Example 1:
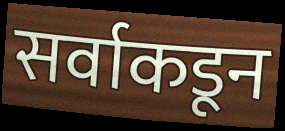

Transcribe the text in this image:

सर्वाकडून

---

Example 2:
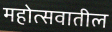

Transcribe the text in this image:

महोत्सवातील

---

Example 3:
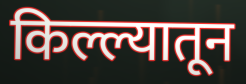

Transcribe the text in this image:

किल्ल्यातून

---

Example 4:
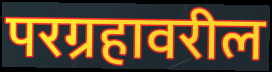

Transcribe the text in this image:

परग्रहावरील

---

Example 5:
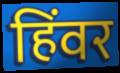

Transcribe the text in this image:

हिंवर